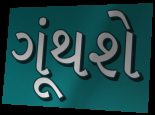
ગૂંથશે